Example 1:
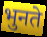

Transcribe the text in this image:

भुनते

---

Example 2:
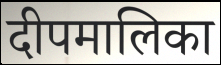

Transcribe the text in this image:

दीपमालिका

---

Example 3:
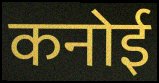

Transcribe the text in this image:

कनोई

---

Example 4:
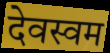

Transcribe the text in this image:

देवस्वम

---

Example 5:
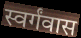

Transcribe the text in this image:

स्वर्गंवास